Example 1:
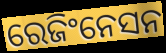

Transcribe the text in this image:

ରେଜିଂନେସନ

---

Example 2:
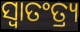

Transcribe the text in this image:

ସ୍ଵାତଂତ୍ର୍ୟ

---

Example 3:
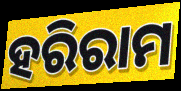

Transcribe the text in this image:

ହରିରାମ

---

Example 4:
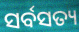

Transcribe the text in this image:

ସର୍ବସତ୍ୟ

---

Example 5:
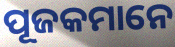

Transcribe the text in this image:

ପୂଜକମାନେ